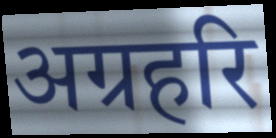
अग्रहरि